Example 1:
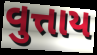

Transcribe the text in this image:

વુત્તાય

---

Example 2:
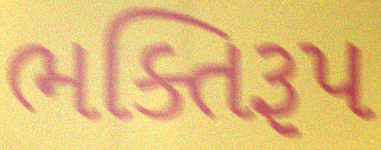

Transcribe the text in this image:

ભક્તિરૂપ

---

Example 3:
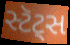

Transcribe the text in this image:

સ્ટૅટ્સ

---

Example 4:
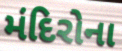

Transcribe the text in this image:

મંદિરોના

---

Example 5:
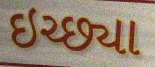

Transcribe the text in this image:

ઇચ્છ્યા